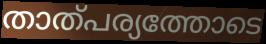
താത്പര്യത്തോടെ